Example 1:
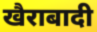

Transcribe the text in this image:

खैराबादी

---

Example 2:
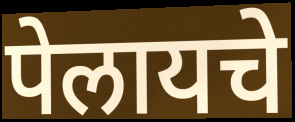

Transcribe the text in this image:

पेलायचे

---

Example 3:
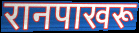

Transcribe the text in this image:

रानपाखरू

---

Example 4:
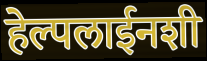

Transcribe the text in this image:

हेल्पलाईनशी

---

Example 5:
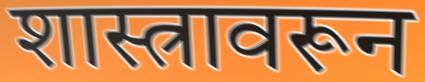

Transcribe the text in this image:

शास्त्रावरून